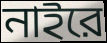
নাইরে